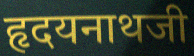
हृदयनाथजी